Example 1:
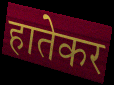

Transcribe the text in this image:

हातेकर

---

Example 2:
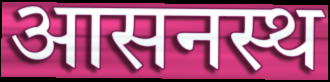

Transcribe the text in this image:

आसनस्थ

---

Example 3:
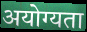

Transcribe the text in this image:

अयोग्यता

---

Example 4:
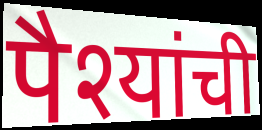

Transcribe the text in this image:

पैश्यांची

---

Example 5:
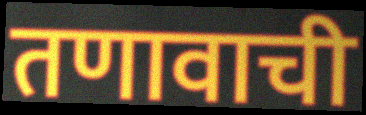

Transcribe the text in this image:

तणावाची